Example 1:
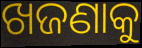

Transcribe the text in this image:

ଖଜଣାକୁ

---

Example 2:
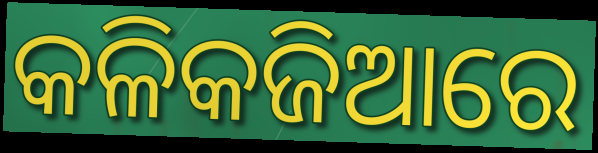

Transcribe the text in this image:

କଳିକଜିଆରେ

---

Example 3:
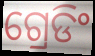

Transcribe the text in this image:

ଗ୍ରେଡିଂ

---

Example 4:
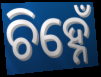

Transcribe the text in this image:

ଚିହ୍ନେଁ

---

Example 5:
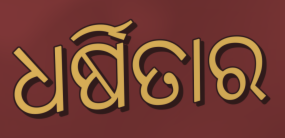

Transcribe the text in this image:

ଧର୍ଷିତାର